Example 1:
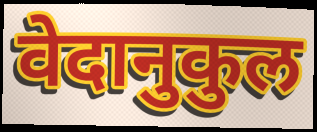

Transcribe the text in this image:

वेदानुकुल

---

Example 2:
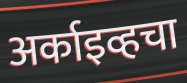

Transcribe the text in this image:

अर्काइव्हचा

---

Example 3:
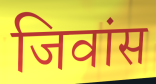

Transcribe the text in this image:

जिवांस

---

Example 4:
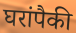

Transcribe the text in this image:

घरांपैकी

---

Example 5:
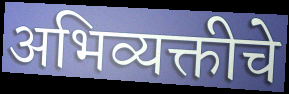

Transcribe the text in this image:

अभिव्यक्तीचे